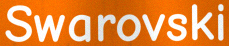
Swarovski